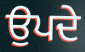
ਉਪਦੇ